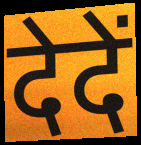
देदें